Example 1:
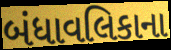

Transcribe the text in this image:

બંધાવલિકાના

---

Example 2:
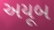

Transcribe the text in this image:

અયૂબ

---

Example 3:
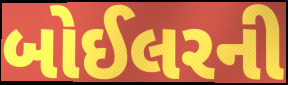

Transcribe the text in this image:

બોઈલરની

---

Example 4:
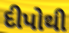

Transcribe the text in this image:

દીપોથી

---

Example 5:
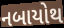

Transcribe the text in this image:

નબાયોથ